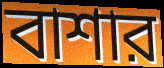
বাশার